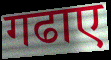
गढाए